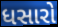
ધસારો